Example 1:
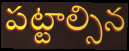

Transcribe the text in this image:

పట్టాల్సిన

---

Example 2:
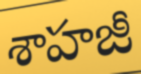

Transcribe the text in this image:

శాహజీ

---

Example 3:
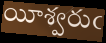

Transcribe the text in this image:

యీశ్వరుఁ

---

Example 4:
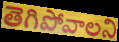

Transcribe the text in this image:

తెగిపోవాలని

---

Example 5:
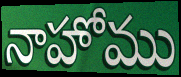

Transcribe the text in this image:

నాహోము